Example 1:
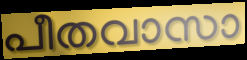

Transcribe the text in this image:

പീതവാസാ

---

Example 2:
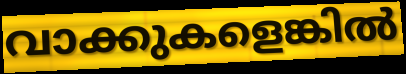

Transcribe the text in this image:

വാക്കുകളെങ്കിൽ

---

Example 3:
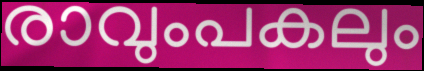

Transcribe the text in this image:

രാവുംപകലും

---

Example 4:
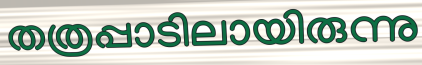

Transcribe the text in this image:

തത്രപ്പാടിലായിരുന്നു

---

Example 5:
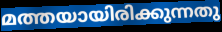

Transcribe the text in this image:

മത്തയായിരിക്കുന്നതു